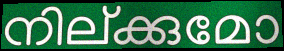
നില്ക്കുമോ